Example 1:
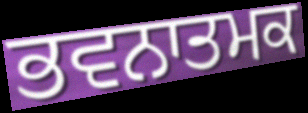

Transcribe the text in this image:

ਭਵਨਾਤਮਕ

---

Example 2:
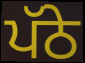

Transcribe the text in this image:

ਪੱਠੇ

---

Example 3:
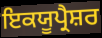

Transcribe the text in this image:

ਇਕਯੂਪ੍ਰੈਸ਼ਰ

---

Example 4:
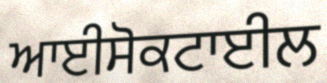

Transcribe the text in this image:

ਆਈਸੋਕਟਾਈਲ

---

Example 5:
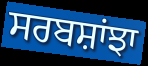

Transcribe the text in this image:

ਸਰਬਸ਼ਾਂਝਾ